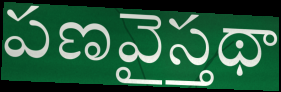
పణవైస్తథా